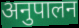
अनुपालन